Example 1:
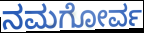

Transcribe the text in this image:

ನಮಗೋರ್ವ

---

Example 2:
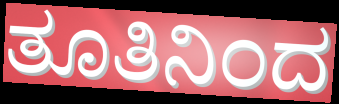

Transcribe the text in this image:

ತೂತಿನಿಂದ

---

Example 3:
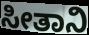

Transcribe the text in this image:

ಸೀತಾನಿ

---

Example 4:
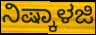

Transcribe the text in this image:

ನಿಷ್ಕಾಳಜಿ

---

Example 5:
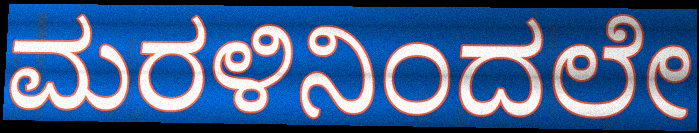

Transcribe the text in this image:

ಮರಳಿನಿಂದಲೇ